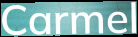
Carmel